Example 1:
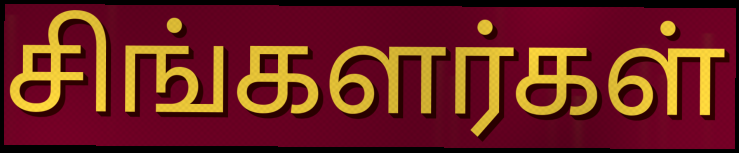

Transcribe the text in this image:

சிங்களர்கள்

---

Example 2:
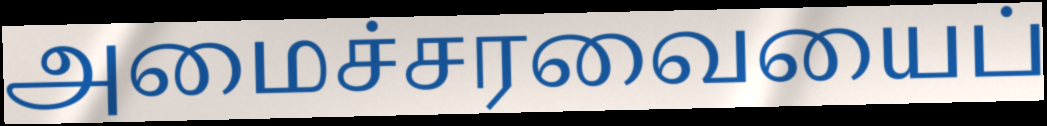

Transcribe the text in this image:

அமைச்சரவையைப்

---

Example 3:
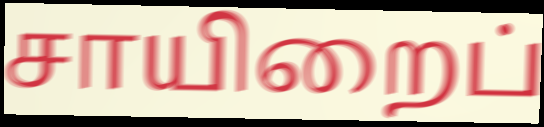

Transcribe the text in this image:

சாயிறைப்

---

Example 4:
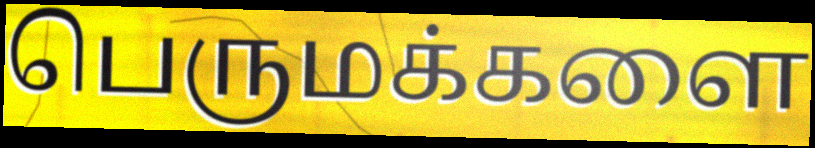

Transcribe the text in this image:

பெருமக்களை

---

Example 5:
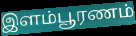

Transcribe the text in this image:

இளம்பூரணம்